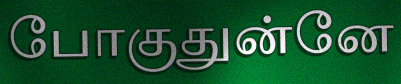
போகுதுன்னே